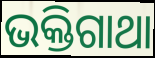
ଭକ୍ତିଗାଥା